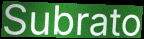
Subrato